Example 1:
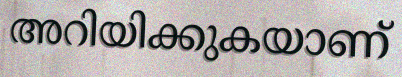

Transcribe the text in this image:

അറിയിക്കുകയാണ്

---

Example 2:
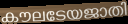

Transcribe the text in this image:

കൗലടേയജാതി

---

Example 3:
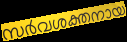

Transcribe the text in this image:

സർവശക്തനായ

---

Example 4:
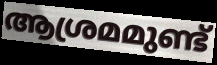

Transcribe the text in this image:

ആശ്രമമുണ്ട്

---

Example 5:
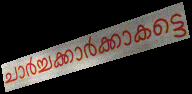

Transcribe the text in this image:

ചാർച്ചക്കാർക്കാകട്ടെ